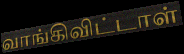
வாங்கிவிட்டாள்